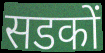
सडकों